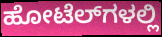
ಹೋಟೆಲ್‌ಗಳಲ್ಲಿ